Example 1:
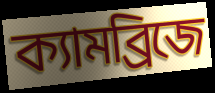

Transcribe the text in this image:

ক্যামব্রিজে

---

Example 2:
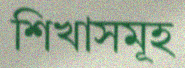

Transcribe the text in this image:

শিখাসমূহ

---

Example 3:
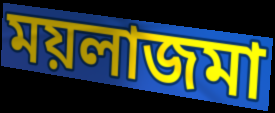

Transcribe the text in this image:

ময়লাজমা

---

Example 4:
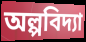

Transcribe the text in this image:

অল্পবিদ্যা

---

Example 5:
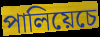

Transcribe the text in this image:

পালিয়েচে